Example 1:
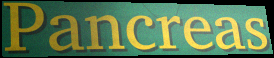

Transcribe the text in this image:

Pancreas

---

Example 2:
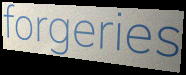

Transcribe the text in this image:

forgeries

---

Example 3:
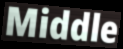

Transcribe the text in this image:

Middle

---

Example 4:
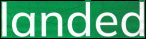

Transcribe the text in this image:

landed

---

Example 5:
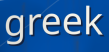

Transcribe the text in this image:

greek